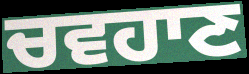
ਚਵਹਾਣ